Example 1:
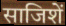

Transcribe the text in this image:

साजिशें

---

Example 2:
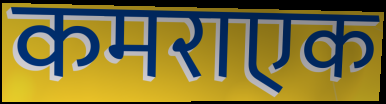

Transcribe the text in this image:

कमराएक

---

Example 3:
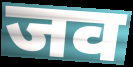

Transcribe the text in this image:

जव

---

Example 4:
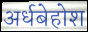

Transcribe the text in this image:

अर्धबेहोश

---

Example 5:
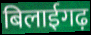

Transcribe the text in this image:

बिलाईगढ़